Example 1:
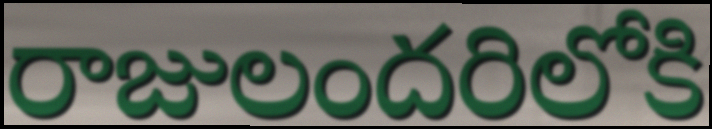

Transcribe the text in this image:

రాజులందరిలోకి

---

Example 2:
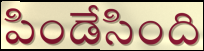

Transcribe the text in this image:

పిండేసింది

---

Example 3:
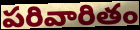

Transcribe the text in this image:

పరివారితం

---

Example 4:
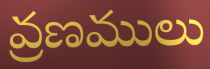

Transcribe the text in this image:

వ్రణములు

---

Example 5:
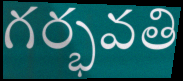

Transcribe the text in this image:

గర్భవతి